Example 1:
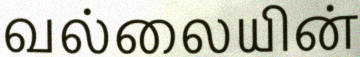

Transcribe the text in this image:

வல்லையின்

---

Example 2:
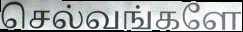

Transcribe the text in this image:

செல்வங்களே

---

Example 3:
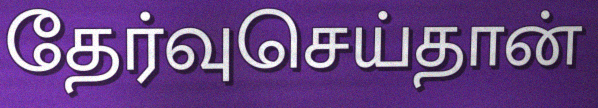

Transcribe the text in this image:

தேர்வுசெய்தான்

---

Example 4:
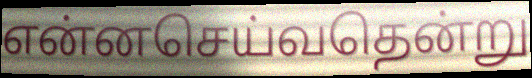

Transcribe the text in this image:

என்னசெய்வதென்று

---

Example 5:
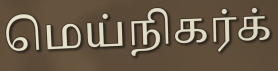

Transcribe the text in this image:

மெய்நிகர்க்